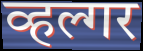
व्हल्गर